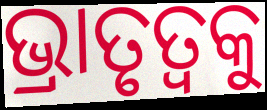
ଭ୍ରାତୃତ୍ୱକୁ